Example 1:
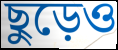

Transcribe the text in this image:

ছুড়েও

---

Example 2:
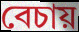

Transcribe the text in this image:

বেচায়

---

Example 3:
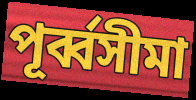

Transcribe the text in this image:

পূর্ব্বসীমা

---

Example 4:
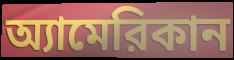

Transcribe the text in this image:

অ্যামেরিকান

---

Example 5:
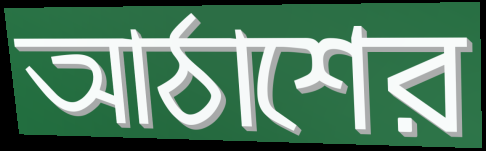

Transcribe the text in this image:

আঠাশের